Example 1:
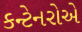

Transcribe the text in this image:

કન્ટેનરોએ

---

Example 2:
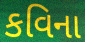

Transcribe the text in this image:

કવિના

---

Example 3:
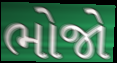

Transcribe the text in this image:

ભોજો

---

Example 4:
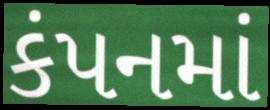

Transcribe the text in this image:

કંપનમાં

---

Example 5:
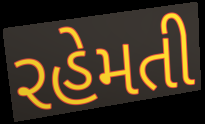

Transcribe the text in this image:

રહેમતી